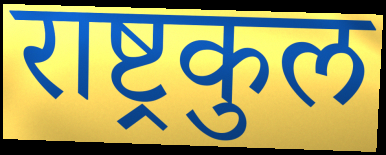
राष्ट्रकुल